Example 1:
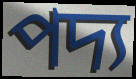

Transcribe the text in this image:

পদ্য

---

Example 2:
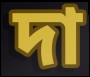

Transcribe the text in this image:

দা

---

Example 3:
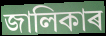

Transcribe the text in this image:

জালিকাৰ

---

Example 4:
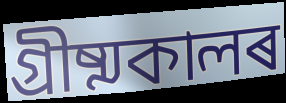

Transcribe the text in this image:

গ্ৰীষ্মকালৰ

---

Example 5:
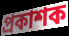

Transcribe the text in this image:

প্ৰকাশক